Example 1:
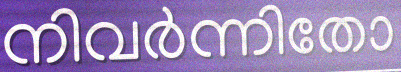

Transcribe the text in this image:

നിവർന്നിതോ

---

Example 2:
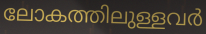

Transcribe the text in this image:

ലോകത്തിലുള്ളവർ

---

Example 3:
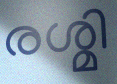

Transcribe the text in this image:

രശ്മി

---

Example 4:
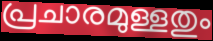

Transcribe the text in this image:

പ്രചാരമുള്ളതും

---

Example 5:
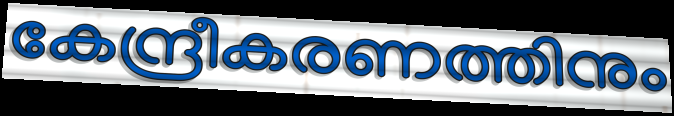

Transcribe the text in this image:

കേന്ദ്രീകരണത്തിനും